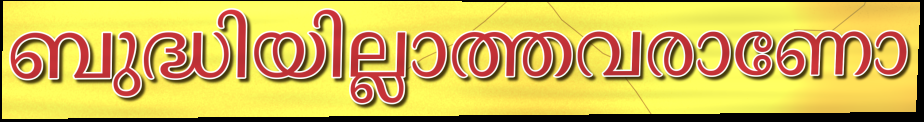
ബുദ്ധിയില്ലാത്തവരാണോ